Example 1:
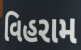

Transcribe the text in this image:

વિહરામ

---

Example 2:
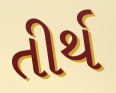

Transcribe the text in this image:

તીર્થ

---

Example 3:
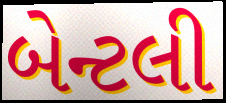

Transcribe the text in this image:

બેન્ટલી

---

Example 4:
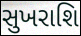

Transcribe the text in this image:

સુખરાશિ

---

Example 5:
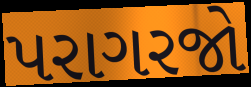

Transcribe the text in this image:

પરાગરજો